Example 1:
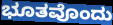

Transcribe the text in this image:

ಭೂತವೊಂದು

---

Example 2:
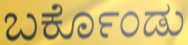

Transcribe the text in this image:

ಬರ್ಕೊಂಡು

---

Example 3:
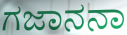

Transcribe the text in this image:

ಗಜಾನನಾ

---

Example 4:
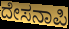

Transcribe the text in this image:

ದೇಸನಾಪಿ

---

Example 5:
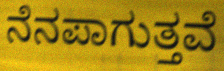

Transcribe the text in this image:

ನೆನಪಾಗುತ್ತವೆ